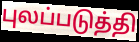
புலப்படுத்தி